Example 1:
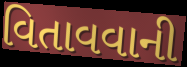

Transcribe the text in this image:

વિતાવવાની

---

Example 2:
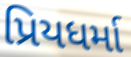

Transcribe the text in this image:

પ્રિયધર્મા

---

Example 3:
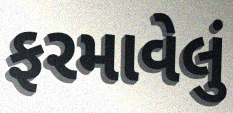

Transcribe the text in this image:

ફરમાવેલું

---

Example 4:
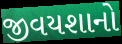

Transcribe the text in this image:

જીવયશાનો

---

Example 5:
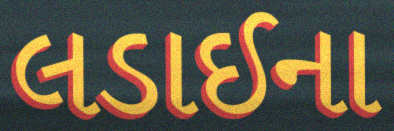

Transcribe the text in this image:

લડાઈના